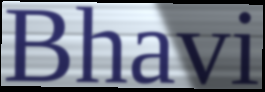
Bhavi